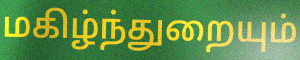
மகிழ்ந்துறையும்